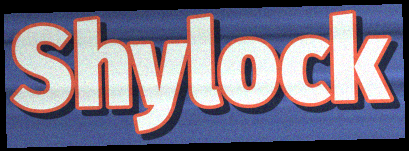
Shylock